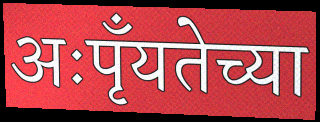
अःपृँयतेच्या